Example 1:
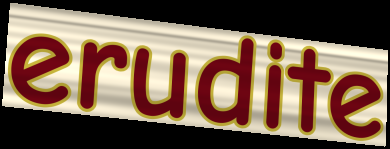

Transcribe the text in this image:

erudite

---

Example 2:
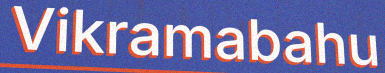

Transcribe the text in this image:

Vikramabahu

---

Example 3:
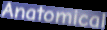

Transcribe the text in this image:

Anatomical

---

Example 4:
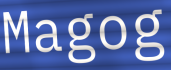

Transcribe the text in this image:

Magog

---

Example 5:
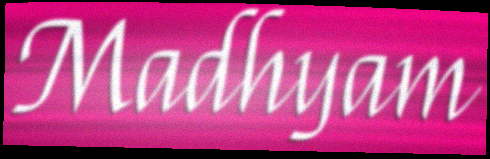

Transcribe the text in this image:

Madhyam